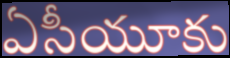
ఏసీయూకు